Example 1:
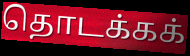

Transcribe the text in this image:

தொடக்கக்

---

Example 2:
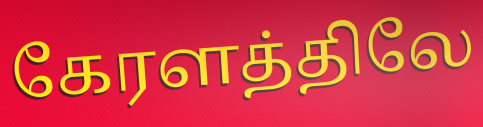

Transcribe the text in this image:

கேரளத்திலே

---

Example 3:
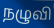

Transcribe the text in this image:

நழுவி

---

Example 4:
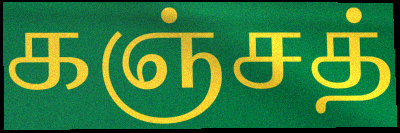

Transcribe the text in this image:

கஞ்சத்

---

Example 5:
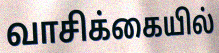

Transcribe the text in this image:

வாசிக்கையில்